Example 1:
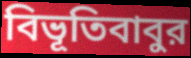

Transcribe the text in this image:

বিভূতিবাবুর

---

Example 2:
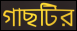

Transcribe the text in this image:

গাছটির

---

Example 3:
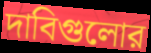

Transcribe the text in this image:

দাবিগুলোর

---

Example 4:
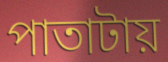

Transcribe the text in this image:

পাতাটায়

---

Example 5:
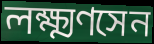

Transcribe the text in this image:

লক্ষ্মণসেন